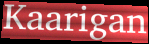
Kaarigan